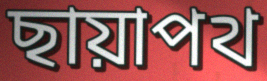
ছায়াপথ